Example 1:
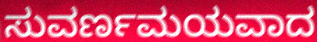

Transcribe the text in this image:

ಸುವರ್ಣಮಯವಾದ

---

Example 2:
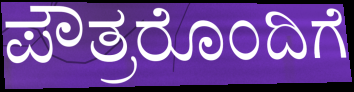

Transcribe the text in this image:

ಪೌತ್ರರೊಂದಿಗೆ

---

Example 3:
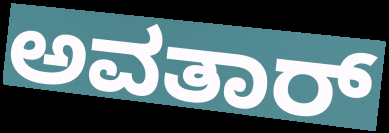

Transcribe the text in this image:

ಅವತಾರ್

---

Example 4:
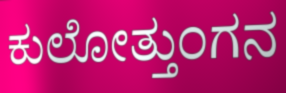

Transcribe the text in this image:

ಕುಲೋತ್ತುಂಗನ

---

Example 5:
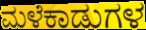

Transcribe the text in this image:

ಮಳೆಕಾಡುಗಳ